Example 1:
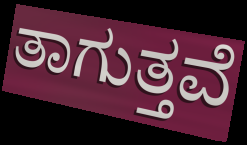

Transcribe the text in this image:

ತಾಗುತ್ತವೆ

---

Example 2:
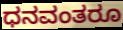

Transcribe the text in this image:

ಧನವಂತರೂ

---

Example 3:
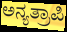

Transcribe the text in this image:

ಅನ್ಯತ್ರಾಪಿ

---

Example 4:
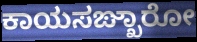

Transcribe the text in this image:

ಕಾಯಸಙ್ಖಾರೋ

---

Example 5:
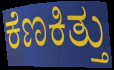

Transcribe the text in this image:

ಕೆಣಕಿತ್ತು